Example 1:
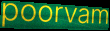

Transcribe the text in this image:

poorvam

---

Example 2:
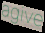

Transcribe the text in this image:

agive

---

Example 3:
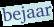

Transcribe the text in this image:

bejaar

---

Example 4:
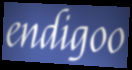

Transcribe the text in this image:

endigoo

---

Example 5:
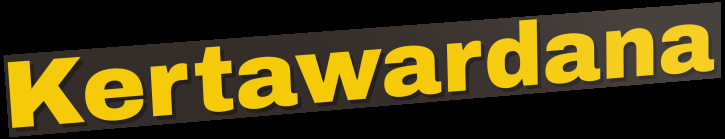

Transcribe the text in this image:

Kertawardana